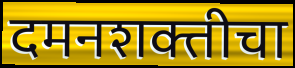
दमनशक्तीचा